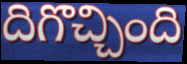
దిగొచ్చింది